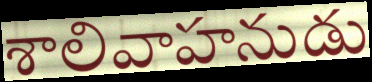
శాలివాహనుడు